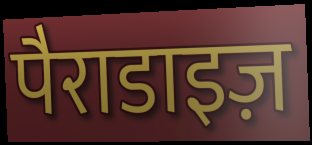
पैराडाइज़